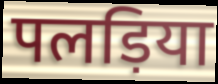
पलड़िया